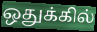
ஒதுக்கில்